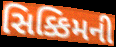
સિક્કિમની